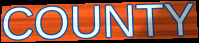
COUNTY